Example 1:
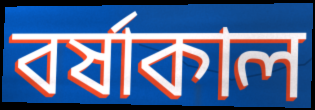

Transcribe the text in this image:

বর্ষাকাল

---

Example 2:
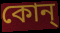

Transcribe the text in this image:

কোন্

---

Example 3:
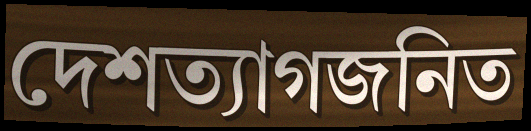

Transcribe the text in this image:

দেশত্যাগজনিত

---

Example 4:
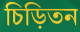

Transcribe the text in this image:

চিড়িতন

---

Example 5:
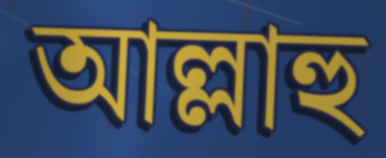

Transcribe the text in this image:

আল্লাহু